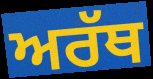
ਅਰੱਥ